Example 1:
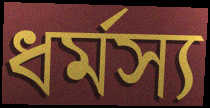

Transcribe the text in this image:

ধৰ্মস্য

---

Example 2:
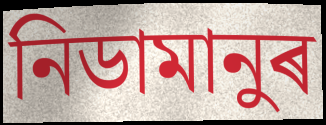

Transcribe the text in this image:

নিডামানুৰ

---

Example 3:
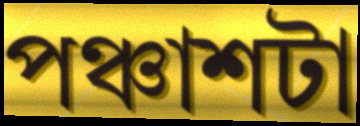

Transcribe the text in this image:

পঞ্চাশটা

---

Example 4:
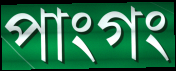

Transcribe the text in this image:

পাংগং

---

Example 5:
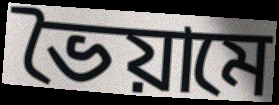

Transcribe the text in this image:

ভৈয়ামে